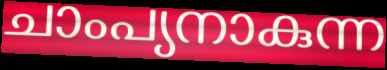
ചാംപ്യനാകുന്ന